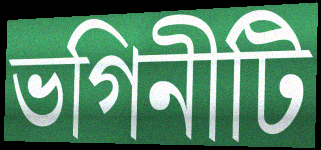
ভগিনীটি